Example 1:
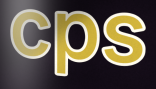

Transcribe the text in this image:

cps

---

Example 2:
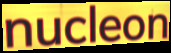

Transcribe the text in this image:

nucleon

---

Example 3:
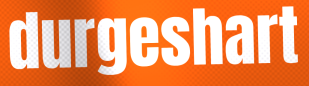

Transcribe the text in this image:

durgeshart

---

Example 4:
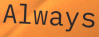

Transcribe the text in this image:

Always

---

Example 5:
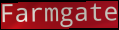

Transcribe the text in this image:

Farmgate